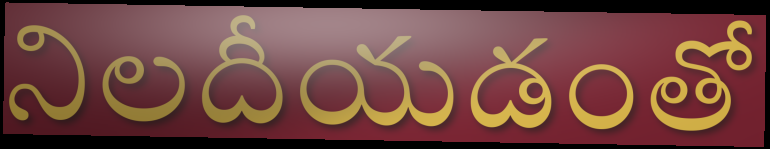
నిలదీయడంతో